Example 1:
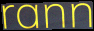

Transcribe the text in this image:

rann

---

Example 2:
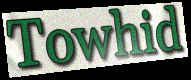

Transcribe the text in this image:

Towhid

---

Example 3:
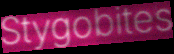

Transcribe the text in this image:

Stygobites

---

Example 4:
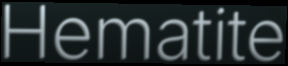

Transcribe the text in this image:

Hematite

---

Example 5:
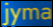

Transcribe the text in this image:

jyma